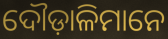
ଦୌଡ଼ାଳିମାନେ